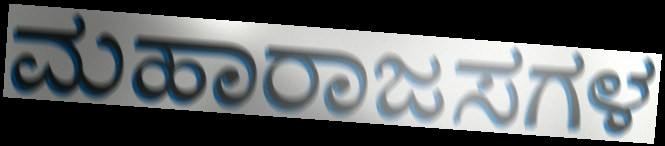
ಮಹಾರಾಜಸಗಳ